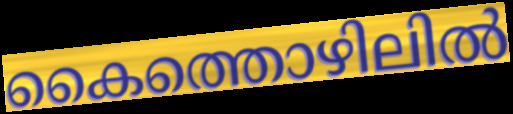
കൈത്തൊഴിലിൽ